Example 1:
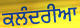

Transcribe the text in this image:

ਕਲੰਦਰੀਆ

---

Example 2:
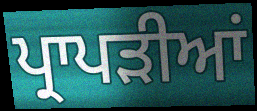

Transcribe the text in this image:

ਪ੍ਰਾਪੜੀਆਂ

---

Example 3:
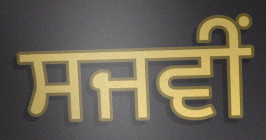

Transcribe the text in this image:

ਸਜਵੀਂ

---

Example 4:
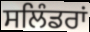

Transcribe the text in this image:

ਸਲਿੰਡਰਾਂ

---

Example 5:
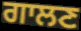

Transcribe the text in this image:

ਗਾਲਣ